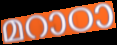
മറാഠാ